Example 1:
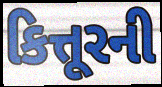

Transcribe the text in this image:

કિત્તૂરની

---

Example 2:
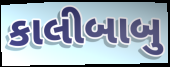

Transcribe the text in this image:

કાલીબાબુ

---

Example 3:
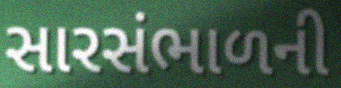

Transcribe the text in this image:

સારસંભાળની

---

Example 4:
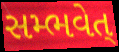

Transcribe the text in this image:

સમ્ભવેત્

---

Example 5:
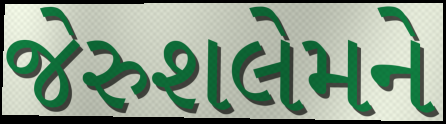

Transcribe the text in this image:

જેરુશલેમને